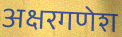
अक्षरगणेश